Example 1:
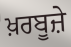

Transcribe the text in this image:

ਖ਼ਰਬੂਜ਼ੇ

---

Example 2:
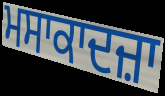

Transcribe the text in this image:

ਮਸਾਕਾਦਜ਼ਾ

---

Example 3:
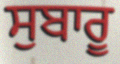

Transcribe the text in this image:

ਸੁਬਾਰੂ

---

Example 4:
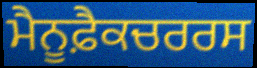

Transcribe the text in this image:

ਮੈਨੂਫ਼ੈਕਚਰਰਸ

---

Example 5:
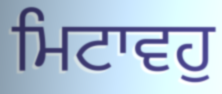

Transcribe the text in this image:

ਮਿਟਾਵਹੁ